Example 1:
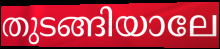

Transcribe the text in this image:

തുടങ്ങിയാലേ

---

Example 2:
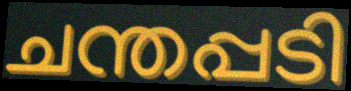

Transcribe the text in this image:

ചന്തപ്പടി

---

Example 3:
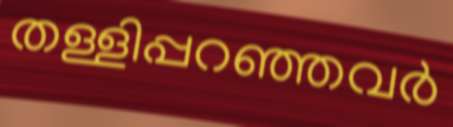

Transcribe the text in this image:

തള്ളിപ്പറഞ്ഞവർ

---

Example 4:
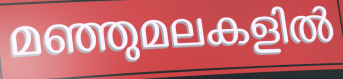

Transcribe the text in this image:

മഞ്ഞുമലകളിൽ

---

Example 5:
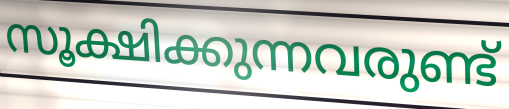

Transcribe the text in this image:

സൂക്ഷിക്കുന്നവരുണ്ട്